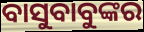
ବାସୁବାବୁଙ୍କର